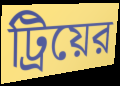
ট্রিয়ের